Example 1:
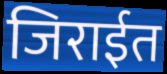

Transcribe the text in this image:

जिराईत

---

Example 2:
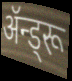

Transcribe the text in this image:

ॲन्ड्रू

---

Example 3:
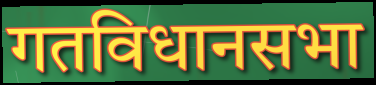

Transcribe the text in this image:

गतविधानसभा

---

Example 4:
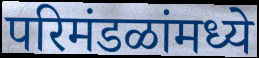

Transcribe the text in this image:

परिमंडळांमध्ये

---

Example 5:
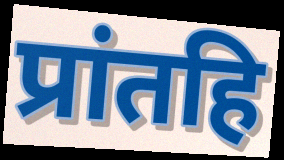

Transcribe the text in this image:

प्रांतहि